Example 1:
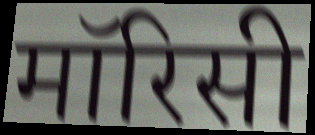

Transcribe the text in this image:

मॉरिसी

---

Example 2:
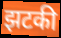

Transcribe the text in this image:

झटकी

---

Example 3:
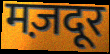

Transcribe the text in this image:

मज़दूर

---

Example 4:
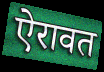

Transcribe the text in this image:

ऐरावत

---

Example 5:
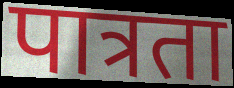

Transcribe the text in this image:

पात्रता